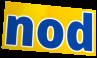
nod